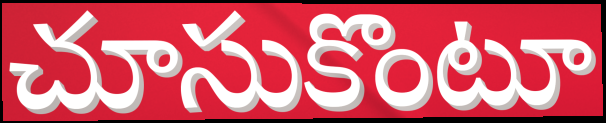
చూసుకొంటూ